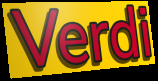
Verdi